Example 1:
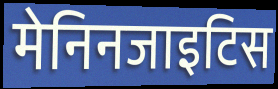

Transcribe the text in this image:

मेनिनजाइटिस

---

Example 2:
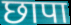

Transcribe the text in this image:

छापा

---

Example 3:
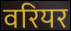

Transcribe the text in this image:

वरियर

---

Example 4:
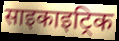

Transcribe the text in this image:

साइकाइट्रिक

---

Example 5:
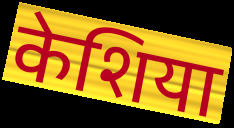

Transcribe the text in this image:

केशिया